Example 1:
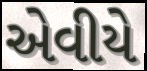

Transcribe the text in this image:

એવીયે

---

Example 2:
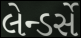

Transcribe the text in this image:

લેન્ડર્સે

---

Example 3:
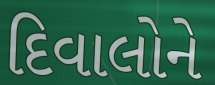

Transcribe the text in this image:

દિવાલોને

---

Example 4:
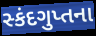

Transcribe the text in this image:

સ્કંદગુપ્તના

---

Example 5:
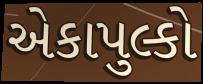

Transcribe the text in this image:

એકાપુલ્કો